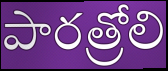
పారత్రోలి